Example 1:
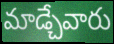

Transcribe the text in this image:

మాడ్చేవారు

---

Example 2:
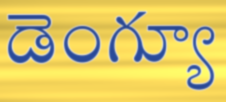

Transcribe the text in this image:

డెంగ్యూ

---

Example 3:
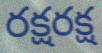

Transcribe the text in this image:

రక్షరక్ష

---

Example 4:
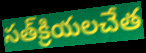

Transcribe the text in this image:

సత్‌క్రియలచేత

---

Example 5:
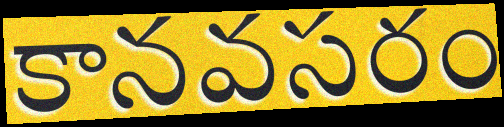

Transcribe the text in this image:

కానవసరం